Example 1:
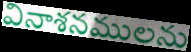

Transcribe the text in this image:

వినాశనములను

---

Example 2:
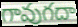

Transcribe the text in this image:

గావుగదా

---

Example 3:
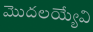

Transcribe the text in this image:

మొదలయ్యేవి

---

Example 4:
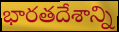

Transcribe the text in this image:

భారతదేశాన్ని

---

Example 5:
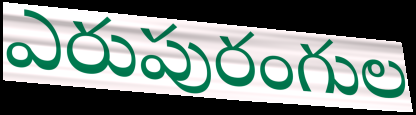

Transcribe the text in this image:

ఎరుపురంగుల